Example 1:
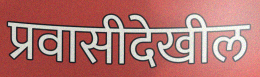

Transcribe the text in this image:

प्रवासीदेखील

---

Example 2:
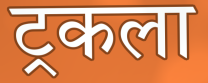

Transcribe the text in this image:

ट्रकला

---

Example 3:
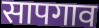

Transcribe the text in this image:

सापगाव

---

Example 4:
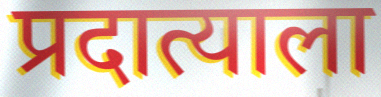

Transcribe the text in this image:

प्रदात्याला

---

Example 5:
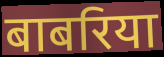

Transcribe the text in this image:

बाबरिया